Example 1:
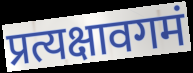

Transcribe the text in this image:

प्रत्यक्षावगमं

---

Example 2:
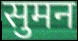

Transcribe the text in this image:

सुमन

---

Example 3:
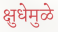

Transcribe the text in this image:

क्षुधेमुळे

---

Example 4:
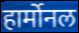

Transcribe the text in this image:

हार्मोनल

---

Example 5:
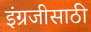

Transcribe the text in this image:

इंग्रजीसाठी